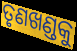
ତୃଣଖଣ୍ଡକୁ